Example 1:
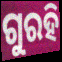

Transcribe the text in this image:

ଗୁରହି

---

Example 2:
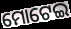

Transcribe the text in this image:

ମୋଟେଇ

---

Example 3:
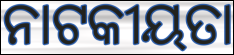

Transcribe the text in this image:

ନାଟକୀୟତା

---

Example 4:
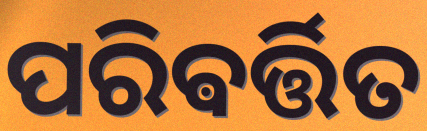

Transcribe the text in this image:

ପରିଵର୍ତ୍ତିତ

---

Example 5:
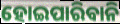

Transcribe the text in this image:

ହୋଇପାରିବାନି